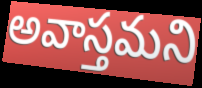
అవాస్తమని